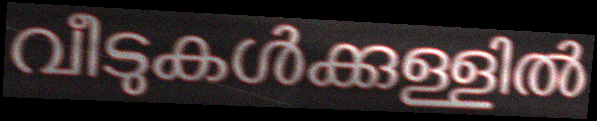
വീടുകൾക്കുള്ളിൽ